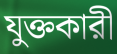
যুক্তকারী